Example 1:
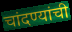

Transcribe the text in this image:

चांदण्यांची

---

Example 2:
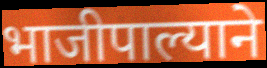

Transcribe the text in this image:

भाजीपाल्याने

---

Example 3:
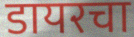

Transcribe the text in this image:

डायरचा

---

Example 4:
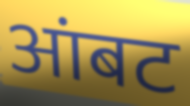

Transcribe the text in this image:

आंबट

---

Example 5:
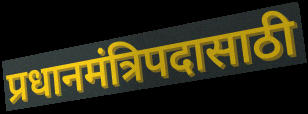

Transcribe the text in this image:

प्रधानमंत्रिपदासाठी